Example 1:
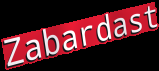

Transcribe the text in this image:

Zabardast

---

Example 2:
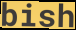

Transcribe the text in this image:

bish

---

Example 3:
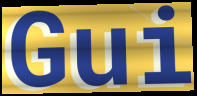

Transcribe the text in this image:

Gui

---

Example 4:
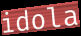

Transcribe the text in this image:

idola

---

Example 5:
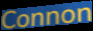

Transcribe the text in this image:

Connon